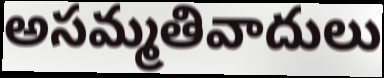
అసమ్మతివాదులు